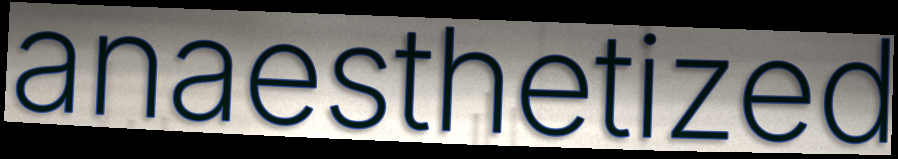
anaesthetized